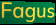
Fagus